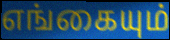
எங்கையும்